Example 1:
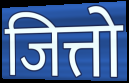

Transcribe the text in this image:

जित्तो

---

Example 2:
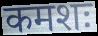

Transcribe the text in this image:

कमशः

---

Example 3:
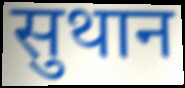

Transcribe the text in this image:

सुथान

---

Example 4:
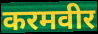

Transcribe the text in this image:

करमवीर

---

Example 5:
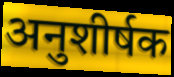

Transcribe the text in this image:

अनुशीर्षक